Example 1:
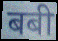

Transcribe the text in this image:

बबी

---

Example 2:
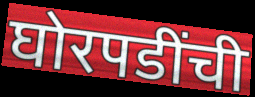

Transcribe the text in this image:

घोरपडींची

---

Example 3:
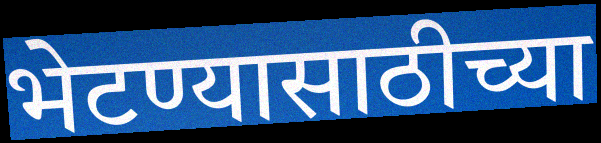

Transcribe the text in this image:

भेटण्यासाठीच्या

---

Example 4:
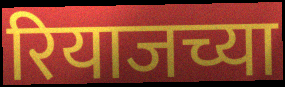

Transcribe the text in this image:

रियाजच्या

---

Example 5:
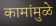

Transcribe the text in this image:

कामांमुळे